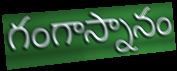
గంగాస్నానం